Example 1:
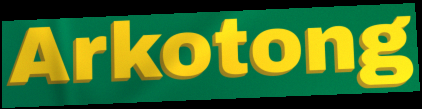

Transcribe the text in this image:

Arkotong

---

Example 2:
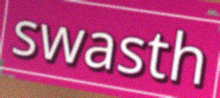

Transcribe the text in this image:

swasth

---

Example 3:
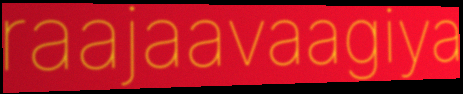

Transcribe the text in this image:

raajaavaagiya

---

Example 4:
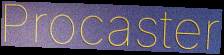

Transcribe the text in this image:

Procaster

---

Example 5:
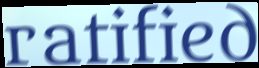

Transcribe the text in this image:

ratified